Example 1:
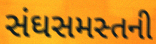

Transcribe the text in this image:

સંઘસમસ્તની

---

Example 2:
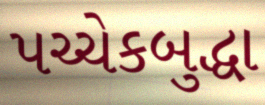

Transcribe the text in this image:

પચ્ચેકબુદ્ધા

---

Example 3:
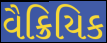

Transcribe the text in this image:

વૈક્રિયિક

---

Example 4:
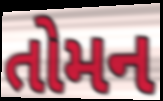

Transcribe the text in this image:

તોમન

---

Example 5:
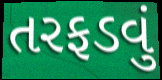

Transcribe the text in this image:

તરફડવું